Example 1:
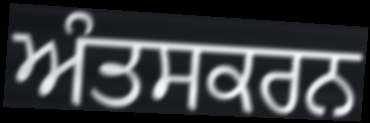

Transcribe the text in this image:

ਅੰਤਸਕਰਨ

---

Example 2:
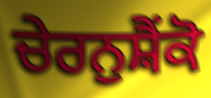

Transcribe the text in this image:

ਚੇਰਨੁਸ਼ੈਂਕੋ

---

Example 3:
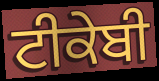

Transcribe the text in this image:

ਟੀਕੇਬੀ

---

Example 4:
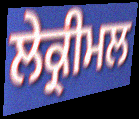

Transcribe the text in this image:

ਲੇਕ੍ਰੀਮਲ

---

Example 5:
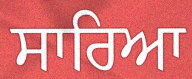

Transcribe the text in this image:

ਸਾਰਿਆ